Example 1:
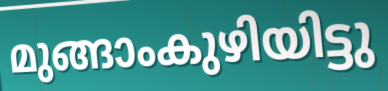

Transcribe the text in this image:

മുങ്ങാംകുഴിയിട്ടു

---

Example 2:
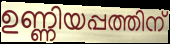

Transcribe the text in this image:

ഉണ്ണിയപ്പത്തിന്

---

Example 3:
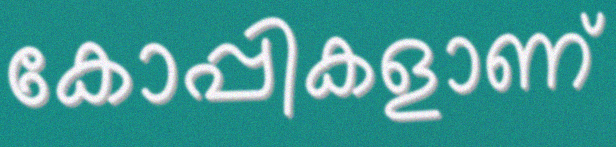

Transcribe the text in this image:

കോപ്പികളാണ്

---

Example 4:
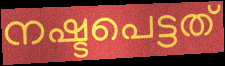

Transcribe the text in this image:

നഷ്ടപെട്ടത്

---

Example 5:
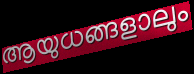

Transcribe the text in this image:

ആയുധങ്ങളാലും